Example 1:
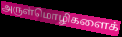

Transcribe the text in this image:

அருள்மொழிகளைக்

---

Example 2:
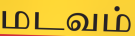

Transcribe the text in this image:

மடவம்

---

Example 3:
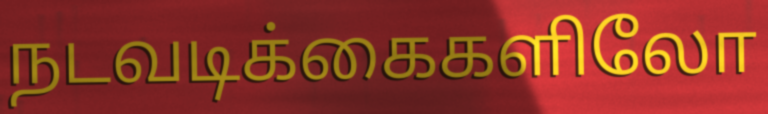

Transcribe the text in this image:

நடவடிக்கைகளிலோ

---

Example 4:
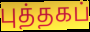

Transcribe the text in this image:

புத்தகப்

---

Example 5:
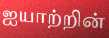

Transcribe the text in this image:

ஐயாற்றின்